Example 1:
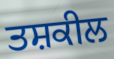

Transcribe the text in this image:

ਤਸ਼ਕੀਲ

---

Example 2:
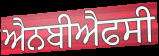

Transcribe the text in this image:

ਐਨਬੀਐਫਸੀ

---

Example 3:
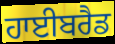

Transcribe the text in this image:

ਹਾਈਬਰੈਡ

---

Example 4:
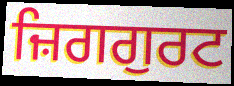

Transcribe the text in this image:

ਜ਼ਿਗਗੁਰਟ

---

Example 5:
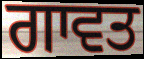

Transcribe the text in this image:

ਗਾਵਤ